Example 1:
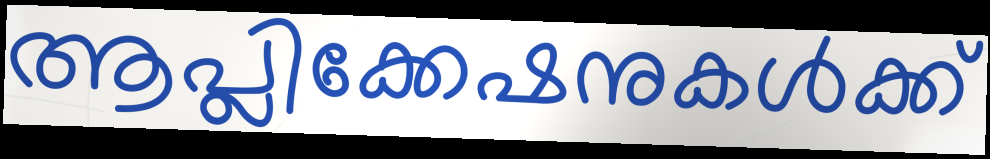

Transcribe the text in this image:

ആപ്ലിക്കേഷനുകൾക്ക്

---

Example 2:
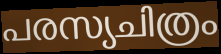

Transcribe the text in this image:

പരസ്യചിത്രം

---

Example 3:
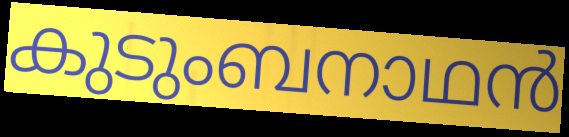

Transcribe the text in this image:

കുടുംബനാഥൻ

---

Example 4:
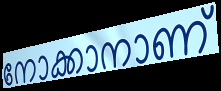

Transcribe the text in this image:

നോക്കാനാണ്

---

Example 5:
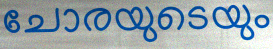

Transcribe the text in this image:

ചോരയുടെയും